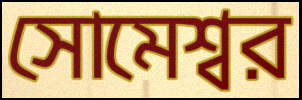
সোমেশ্বর